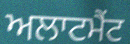
ਅਲਾਟਮੈਂਟ